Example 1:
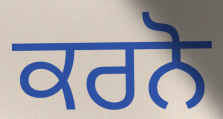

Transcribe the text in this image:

ਕਰਨੋ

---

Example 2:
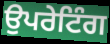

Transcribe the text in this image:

ਉਪਰੇਟਿੰਗ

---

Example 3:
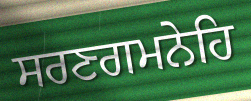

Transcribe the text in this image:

ਸਰਣਗਮਨੇਹਿ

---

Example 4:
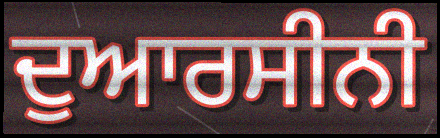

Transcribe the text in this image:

ਦੁਆਰਸੀਨੀ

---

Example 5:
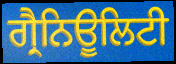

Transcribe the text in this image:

ਗ੍ਰੈਨਿਊਲਿਟੀ